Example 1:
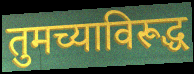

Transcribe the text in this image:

तुमच्याविरूद्ध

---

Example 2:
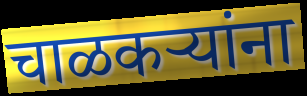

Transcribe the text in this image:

चाळकऱ्यांना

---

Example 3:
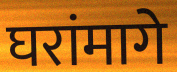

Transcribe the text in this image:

घरांमागे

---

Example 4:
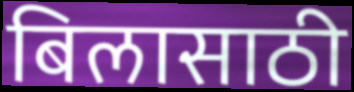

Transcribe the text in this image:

बिलासाठी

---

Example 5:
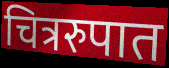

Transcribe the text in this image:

चित्ररुपात